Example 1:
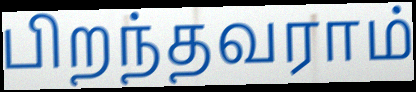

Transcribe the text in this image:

பிறந்தவராம்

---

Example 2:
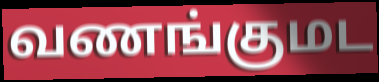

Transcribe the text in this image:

வணங்குமட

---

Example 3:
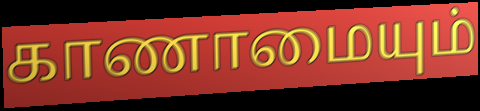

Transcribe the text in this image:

காணாமையும்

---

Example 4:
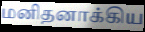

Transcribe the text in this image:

மனிதனாக்கிய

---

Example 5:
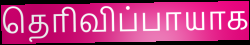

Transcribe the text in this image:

தெரிவிப்பாயாக